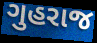
ગુહરાજ